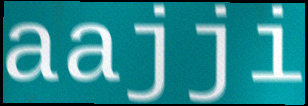
aajji